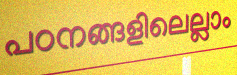
പഠനങ്ങളിലെല്ലാം